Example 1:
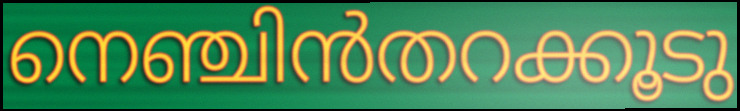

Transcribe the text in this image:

നെഞ്ചിൻതറക്കൂടു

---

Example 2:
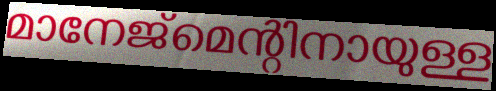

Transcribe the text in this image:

മാനേജ്മെന്റിനായുള്ള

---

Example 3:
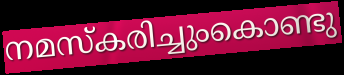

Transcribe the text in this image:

നമസ്കരിച്ചുംകൊണ്ടു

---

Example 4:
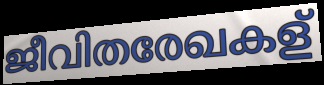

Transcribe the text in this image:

ജീവിതരേഖകള്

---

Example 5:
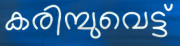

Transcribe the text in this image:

കരിമ്പുവെട്ട്